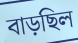
বাড়ছিল